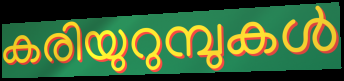
കരിയുറുമ്പുകൾ